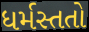
ધર્મસ્તતો